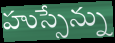
హుస్సేన్ను